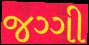
જગ્ગી